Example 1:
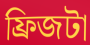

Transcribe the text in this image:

ফ্রিজটা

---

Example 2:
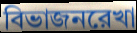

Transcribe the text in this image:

বিভাজনরেখা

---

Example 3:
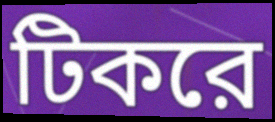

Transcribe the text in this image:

টিকরে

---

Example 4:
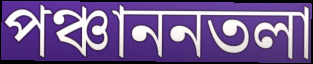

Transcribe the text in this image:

পঞ্চাননতলা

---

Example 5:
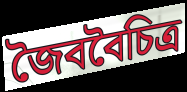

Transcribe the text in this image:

জৈববৈচিত্র